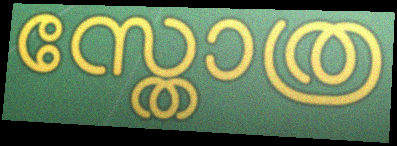
സ്തോത്ര